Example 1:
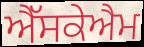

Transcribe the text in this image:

ਐੱਸਕੇਐਮ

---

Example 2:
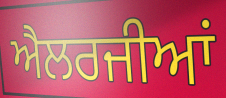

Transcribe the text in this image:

ਐਲਰਜੀਆਂ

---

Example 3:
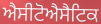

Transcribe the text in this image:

ਐਸੀਟੋਐਸੈਟਿਕ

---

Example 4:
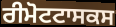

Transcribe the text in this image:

ਰੀਮੋਟਟਾਸਕਸ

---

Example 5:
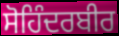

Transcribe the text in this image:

ਸੋਹਿੰਦਰਬੀਰ